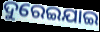
ଦୁରେଇଯାଇ